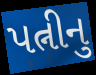
પત્નીનુ